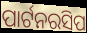
ପାର୍ଟନରସିପ